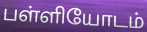
பள்ளியோடம்